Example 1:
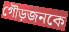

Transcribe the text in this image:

গৌড়জনকে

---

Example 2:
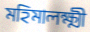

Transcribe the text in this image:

মহিমালক্ষ্মী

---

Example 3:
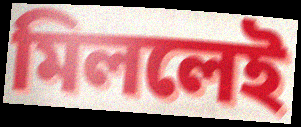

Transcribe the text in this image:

মিললেই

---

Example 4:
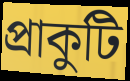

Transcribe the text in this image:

প্রাকুটি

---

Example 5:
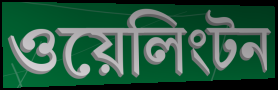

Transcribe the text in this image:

ওয়েলিংটন